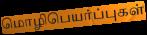
மொழிபெயர்ப்புகள்